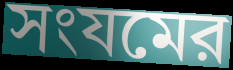
সংযমের